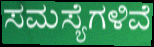
ಸಮಸ್ಯೆಗಳಿವೆ